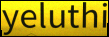
yeluthi